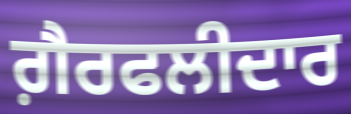
ਗ਼ੈਰਫਲੀਦਾਰ